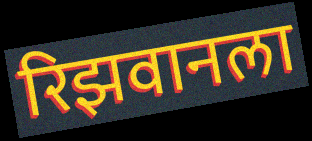
रिझवानला